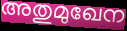
അതുമുഖേന